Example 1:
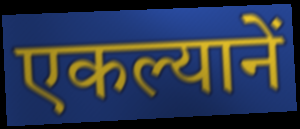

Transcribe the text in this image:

एकल्यानें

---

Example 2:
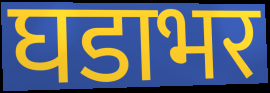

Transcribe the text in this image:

घडाभर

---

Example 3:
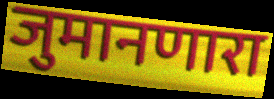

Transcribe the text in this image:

जुमानणारा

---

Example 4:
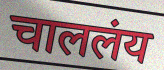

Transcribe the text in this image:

चाललंय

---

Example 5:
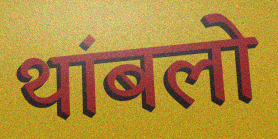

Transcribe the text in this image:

थांबलो